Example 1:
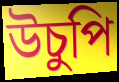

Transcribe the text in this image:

উচুপি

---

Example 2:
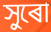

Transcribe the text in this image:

সুৰো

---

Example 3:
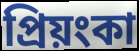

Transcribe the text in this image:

প্ৰিয়ংকা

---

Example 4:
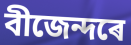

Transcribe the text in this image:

বীজেন্দৰে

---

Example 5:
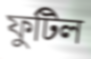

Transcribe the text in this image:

ফুটিল